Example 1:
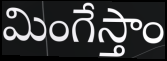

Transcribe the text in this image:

మింగేస్తాం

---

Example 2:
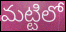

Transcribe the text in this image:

మట్టిలో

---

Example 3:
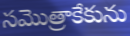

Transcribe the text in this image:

సమొత్రాకేకును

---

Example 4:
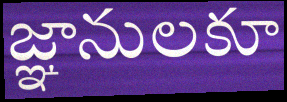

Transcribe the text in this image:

జ్ఞానులకూ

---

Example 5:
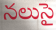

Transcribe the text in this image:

నలుసై